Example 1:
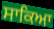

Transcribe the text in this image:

ਸਾਕਿਆ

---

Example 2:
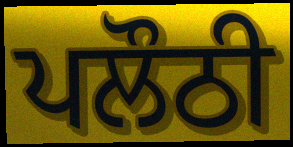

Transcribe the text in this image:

ਪਲੌਠੀ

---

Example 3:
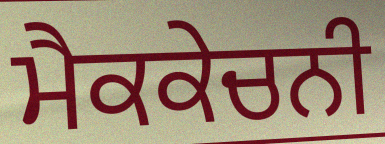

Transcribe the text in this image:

ਮੈਕਕੇਚਨੀ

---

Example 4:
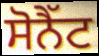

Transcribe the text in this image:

ਸੋਨੈੱਟ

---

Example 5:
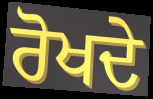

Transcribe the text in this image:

ਰੋਖਦੇ